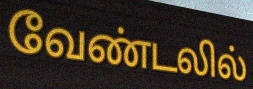
வேண்டலில்